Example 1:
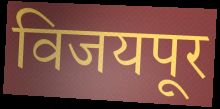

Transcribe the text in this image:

विजयपूर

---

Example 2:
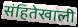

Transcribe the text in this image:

संहितेखाली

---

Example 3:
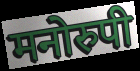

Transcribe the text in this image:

मनोरुपी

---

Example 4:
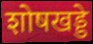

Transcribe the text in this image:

शोषखड्डे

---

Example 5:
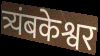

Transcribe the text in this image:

त्र्यंबकेश्वर